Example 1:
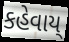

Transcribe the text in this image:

કહેવાય્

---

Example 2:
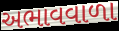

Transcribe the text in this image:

અભાવવાળા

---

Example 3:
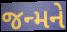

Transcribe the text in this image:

જન્મને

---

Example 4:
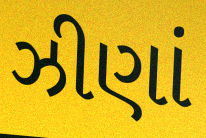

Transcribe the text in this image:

ઝીણાં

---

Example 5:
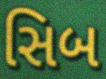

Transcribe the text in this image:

સિબ